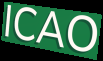
ICAO